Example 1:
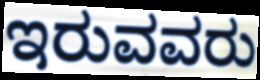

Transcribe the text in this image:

ಇರುವವರು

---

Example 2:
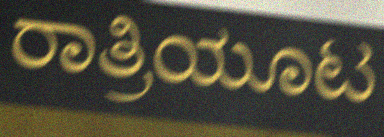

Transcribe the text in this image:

ರಾತ್ರಿಯೂಟ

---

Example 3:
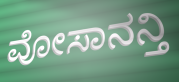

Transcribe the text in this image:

ವೋಸಾನನ್ತಿ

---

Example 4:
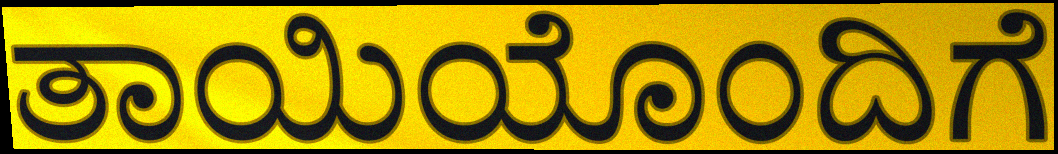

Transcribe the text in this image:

ತಾಯಿಯೊಂದಿಗೆ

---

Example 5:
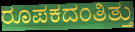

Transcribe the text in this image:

ರೂಪಕದಂತಿತ್ತು